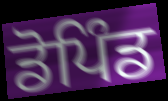
ਡੋਪਿੰਡ